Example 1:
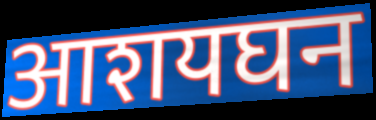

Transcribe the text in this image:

आशयघन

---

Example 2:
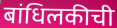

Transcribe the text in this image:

बांधिलकीची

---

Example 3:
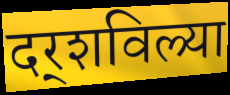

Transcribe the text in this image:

दर्शविल्या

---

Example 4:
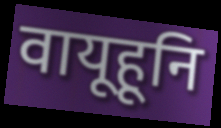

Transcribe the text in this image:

वायूहूनि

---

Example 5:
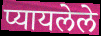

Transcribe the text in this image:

प्यायलेले